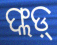
ଫ୍ଲଡ଼୍